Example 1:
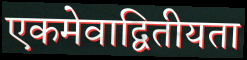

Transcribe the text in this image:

एकमेवाद्वितीयता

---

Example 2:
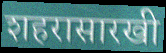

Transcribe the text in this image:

शहरासारखी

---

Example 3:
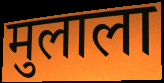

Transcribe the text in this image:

मुलाला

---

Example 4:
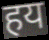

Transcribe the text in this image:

हय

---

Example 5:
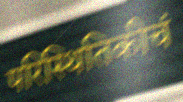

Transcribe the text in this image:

परिस्थितिकीचं